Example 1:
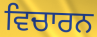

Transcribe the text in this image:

ਵਿਚਾਰਨ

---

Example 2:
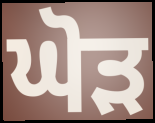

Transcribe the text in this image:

ਘੋੜ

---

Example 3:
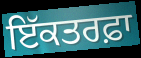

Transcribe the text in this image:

ਇੱਕਤਰਫ਼ਾ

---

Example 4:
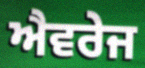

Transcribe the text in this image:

ਐਵਰੇਜ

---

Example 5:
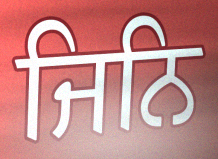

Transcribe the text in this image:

ਜਿਨਿ